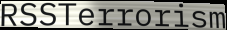
RSSTerrorism